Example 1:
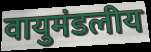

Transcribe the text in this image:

वायुमंडलीय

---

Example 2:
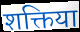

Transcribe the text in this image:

शक्तिया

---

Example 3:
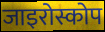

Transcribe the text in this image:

जाइरोस्कोप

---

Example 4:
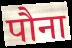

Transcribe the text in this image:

पौना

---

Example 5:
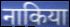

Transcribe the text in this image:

नाकिया